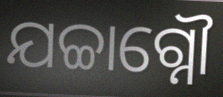
ଯଚ୍ଚାଗ୍ନୌ